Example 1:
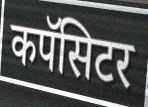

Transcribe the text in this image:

कपॅसिटर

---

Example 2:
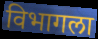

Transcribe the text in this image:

विभागला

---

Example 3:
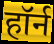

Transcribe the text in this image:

हॉर्न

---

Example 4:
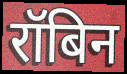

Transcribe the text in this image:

रॉबिन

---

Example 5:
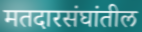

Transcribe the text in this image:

मतदारसंघांतील